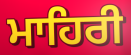
ਮਾਹਿਰੀ